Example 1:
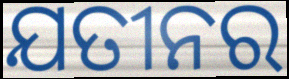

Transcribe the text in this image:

ଯତୀନର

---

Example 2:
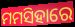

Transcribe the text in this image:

ମମସିହାରେ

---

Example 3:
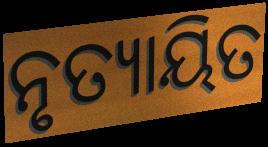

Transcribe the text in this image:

ନୃତ୍ୟାୟିତ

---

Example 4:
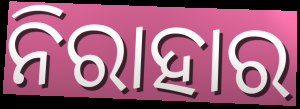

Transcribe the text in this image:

ନିରାହାର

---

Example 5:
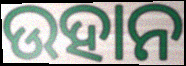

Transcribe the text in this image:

ଉହାନ